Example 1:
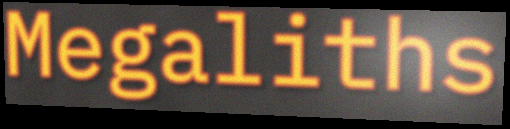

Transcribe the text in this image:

Megaliths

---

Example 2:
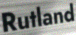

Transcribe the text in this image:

Rutland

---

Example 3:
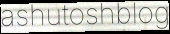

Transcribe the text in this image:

ashutoshblog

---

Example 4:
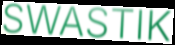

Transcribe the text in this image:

SWASTIK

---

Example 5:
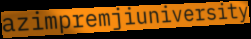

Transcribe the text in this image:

azimpremjiuniversity